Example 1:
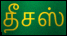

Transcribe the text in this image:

தீசஸ்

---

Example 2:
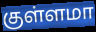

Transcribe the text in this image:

குள்ளமா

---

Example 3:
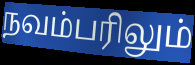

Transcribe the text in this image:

நவம்பரிலும்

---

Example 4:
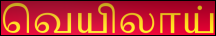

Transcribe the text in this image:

வெயிலாய்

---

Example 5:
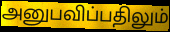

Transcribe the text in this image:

அனுபவிப்பதிலும்